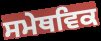
ਸਮੇਥਵਿਕ